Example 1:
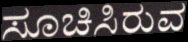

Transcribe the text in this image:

ಸೂಚಿಸಿರುವ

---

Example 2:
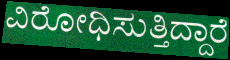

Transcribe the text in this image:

ವಿರೋಧಿಸುತ್ತಿದ್ದಾರೆ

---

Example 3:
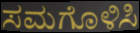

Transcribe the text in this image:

ಸಮಗೊಳಿಸಿ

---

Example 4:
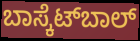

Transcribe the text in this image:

ಬಾಸ್ಕೆಟ್‍ಬಾಲ್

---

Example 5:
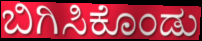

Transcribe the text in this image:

ಬಿಗಿಸಿಕೊಂಡು